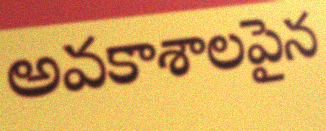
అవకాశాలపైన